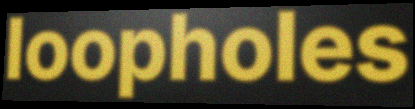
loopholes